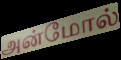
அன்மோல்